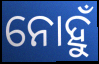
ନୋହୁଁ